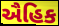
ઐહિક